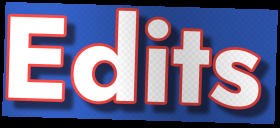
Edits